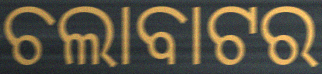
ଚଲାବାଟର